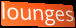
lounges